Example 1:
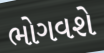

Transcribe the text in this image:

ભોગવશે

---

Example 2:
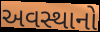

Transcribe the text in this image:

અવસ્થાનો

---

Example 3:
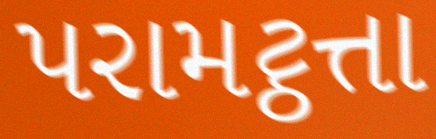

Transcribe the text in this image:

પરામટ્ઠત્તા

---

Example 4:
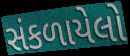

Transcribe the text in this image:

સંકળાયેલો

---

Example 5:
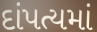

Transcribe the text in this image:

દાંપત્યમાં